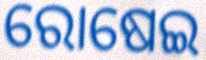
ରୋଷେଇ